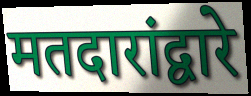
मतदारांद्वारे